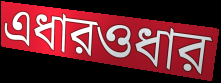
এধারওধার